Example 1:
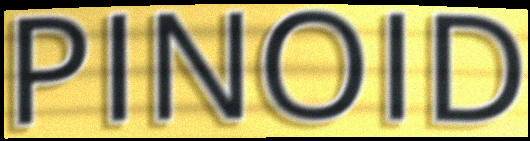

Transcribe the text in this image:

PINOID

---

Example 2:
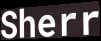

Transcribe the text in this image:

Sherr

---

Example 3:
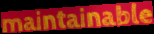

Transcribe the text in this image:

maintainable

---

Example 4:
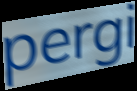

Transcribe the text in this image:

pergi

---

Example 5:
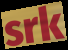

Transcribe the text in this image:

srk